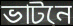
ভাটনে